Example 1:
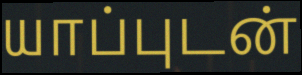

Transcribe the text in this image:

யாப்புடன்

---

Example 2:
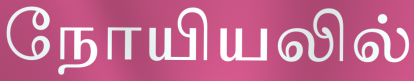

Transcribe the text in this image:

நோயியலில்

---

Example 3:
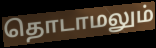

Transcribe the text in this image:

தொடாமலும்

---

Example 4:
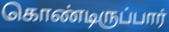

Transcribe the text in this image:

கொண்டிருப்பார்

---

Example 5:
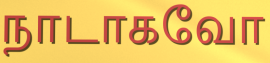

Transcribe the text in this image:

நாடாகவோ